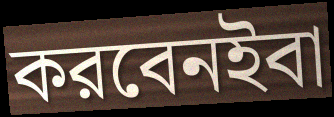
করবেনইবা